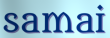
samai